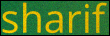
sharif